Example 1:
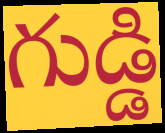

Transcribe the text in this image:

గుడ్డి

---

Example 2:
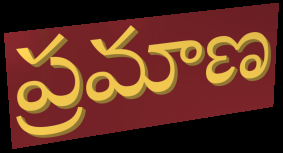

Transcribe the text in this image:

ప్రమాణ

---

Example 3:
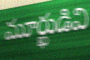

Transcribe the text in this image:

మూర్ఖుడివి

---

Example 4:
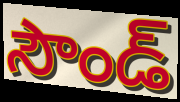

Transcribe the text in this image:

సౌండ్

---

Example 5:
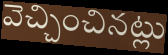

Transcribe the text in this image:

వెచ్చించినట్లు